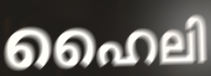
ഹൈലി